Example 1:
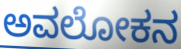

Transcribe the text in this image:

ಅವಲೋಕನ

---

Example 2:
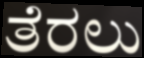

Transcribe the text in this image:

ತೆರಲು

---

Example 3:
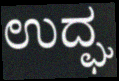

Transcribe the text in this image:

ಉದ್ಘ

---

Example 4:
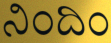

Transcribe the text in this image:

ನಿಂದಿಂ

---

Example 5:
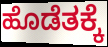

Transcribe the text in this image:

ಹೊಡೆತಕ್ಕೆ